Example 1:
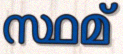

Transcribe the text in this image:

സ്ഥമ്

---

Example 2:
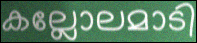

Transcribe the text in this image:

കല്ലോലമാടി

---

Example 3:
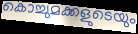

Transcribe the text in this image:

കൊച്ചുമക്കളുടെയും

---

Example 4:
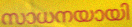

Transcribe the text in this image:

സാധനയായി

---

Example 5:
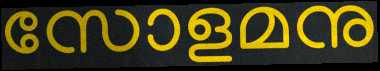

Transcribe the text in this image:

സോളമനു